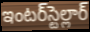
ఇంటర్‌స్టెల్లార్